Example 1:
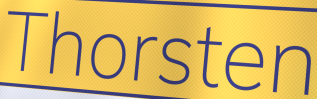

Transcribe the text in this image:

Thorsten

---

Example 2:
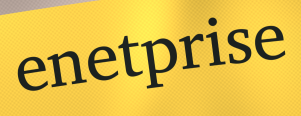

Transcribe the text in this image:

enetprise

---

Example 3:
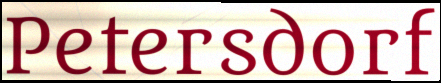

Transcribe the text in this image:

Petersdorf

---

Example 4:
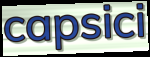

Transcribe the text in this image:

capsici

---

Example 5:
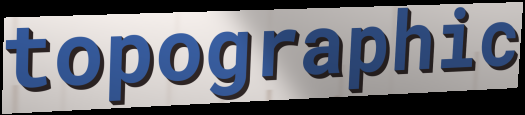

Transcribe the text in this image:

topographic